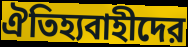
ঐতিহ্যবাহীদের